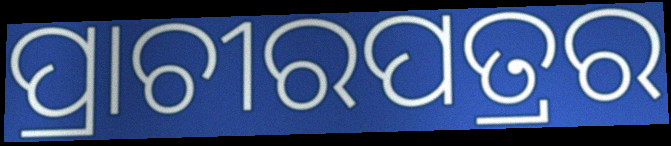
ପ୍ରାଚୀରପତ୍ରର